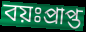
বয়ঃপ্রাপ্ত